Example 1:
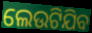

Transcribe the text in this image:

ଲେଉଟିଯିବ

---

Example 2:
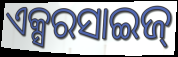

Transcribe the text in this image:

ଏକ୍ସରସାଇଜ୍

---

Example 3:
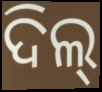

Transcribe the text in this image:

ଦିଲ୍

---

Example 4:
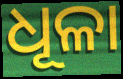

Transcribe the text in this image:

ଧୂଳା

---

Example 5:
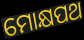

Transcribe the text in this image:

ମୋକ୍ଷପଥ